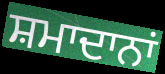
ਸ਼ਮਾਦਾਨਾਂ